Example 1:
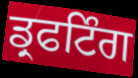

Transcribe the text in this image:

ਡ੍ਰਫਟਿੰਗ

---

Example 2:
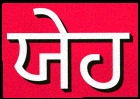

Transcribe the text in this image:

ਯੇਹ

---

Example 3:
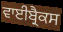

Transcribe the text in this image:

ਵਾਈਬ੍ਰੈਕਸ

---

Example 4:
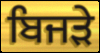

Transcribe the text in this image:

ਬਿਜੜੇ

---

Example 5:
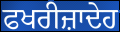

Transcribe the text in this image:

ਫਖਰੀਜ਼ਾਦੇਹ